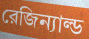
রেজিন্যাল্ড